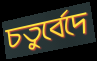
চতুর্বেদে